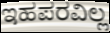
ಇಹಪರವಿಲ್ಲ